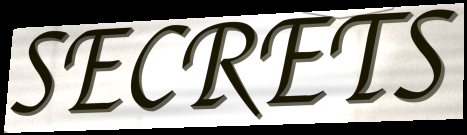
SECRETS